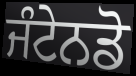
ਜੰਟੇਨਡੋ